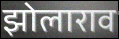
झोलाराव